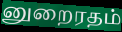
னுறைரதம்